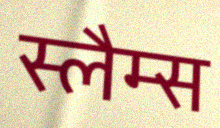
स्लैम्स